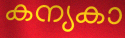
കന്യകാ